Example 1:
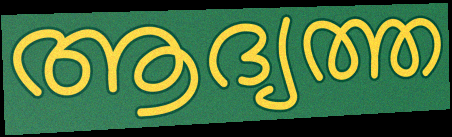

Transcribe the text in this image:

ആദ്യത്ത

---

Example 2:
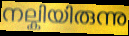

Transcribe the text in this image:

നല്കിയിരുന്നു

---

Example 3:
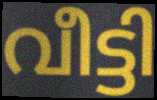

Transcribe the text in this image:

വീട്ടി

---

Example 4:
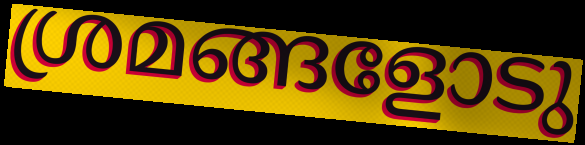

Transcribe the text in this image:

ശ്രമങ്ങളോടു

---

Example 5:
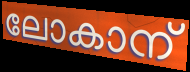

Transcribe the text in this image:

ലോകാന്